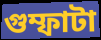
গুম্ফাটা